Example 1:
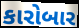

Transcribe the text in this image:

કારોબાર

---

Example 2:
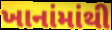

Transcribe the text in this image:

ખાનાંમાંથી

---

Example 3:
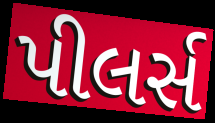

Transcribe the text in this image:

પીલર્સ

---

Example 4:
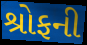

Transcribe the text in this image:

શ્રોફની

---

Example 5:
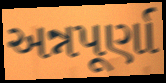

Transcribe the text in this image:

અન્નપૂર્ણા